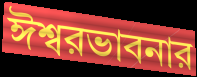
ঈশ্বরভাবনার